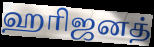
ஹரிஜனத்